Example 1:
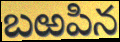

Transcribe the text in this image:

బఱపిన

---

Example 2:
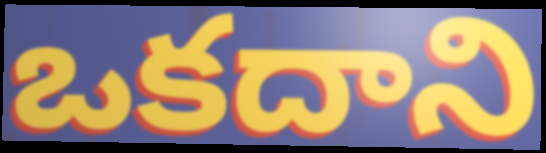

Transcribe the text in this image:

ఒకదాని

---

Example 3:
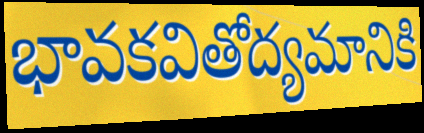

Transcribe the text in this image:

భావకవితోద్యమానికి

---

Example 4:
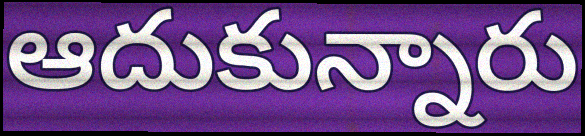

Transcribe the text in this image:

ఆదుకున్నారు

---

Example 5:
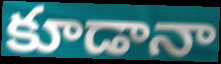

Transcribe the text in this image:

కూడానా